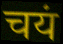
चयं